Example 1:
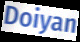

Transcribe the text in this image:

Doiyan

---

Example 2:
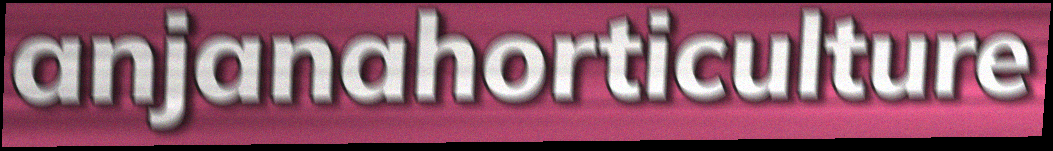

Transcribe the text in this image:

anjanahorticulture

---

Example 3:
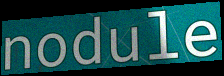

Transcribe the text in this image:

nodule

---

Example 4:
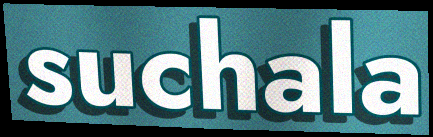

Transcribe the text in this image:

suchala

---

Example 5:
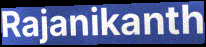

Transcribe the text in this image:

Rajanikanth